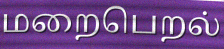
மறைபெறல்